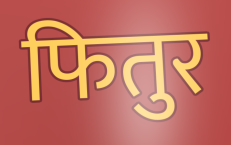
फितुर